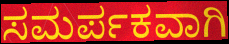
ಸಮರ್ಪಕವಾಗಿ